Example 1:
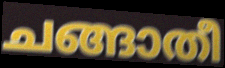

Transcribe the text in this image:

ചങ്ങാതീ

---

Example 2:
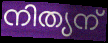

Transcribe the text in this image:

നിത്യന്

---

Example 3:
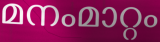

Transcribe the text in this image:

മനംമാറ്റം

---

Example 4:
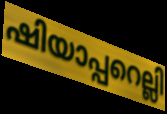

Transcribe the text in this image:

ഷിയാപ്പറെല്ലി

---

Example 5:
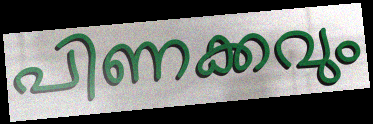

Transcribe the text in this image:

പിണക്കവും